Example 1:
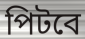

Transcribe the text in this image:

পিটবে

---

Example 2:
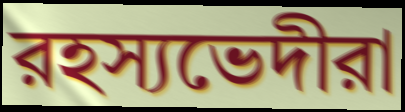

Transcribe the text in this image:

রহস্যভেদীরা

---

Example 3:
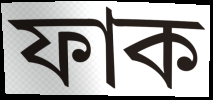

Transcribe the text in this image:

ফাক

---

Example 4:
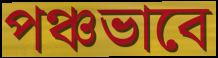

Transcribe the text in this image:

পঞ্চভাবে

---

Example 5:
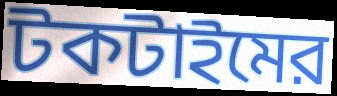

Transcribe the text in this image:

টকটাইমের